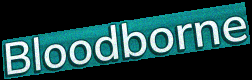
Bloodborne